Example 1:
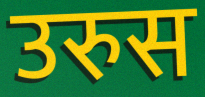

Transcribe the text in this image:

उरुस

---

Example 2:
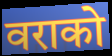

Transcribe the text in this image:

वराको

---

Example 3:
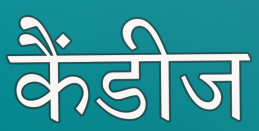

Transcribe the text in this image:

कैंडीज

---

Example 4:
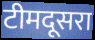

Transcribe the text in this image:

टीमदूसरा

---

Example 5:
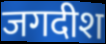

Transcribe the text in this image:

जगदीश